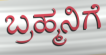
ಬ್ರಹ್ಮನಿಗೆ